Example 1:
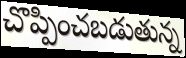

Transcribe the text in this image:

చొప్పించబడుతున్న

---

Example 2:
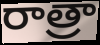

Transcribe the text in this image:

రాత్రా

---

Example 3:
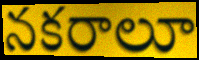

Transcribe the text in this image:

నకరాలూ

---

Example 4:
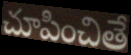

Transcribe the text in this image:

చూపించితే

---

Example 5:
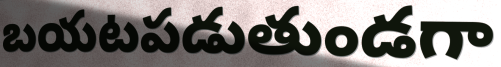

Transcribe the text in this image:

బయటపడుతుండగా